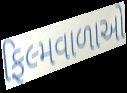
ફિલ્મવાળાઓ